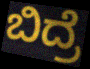
ಬಿದ್ರೆ